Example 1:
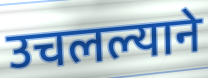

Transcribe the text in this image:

उचलल्याने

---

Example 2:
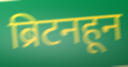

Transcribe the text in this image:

ब्रिटनहून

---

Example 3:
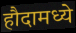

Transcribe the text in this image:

हौदामध्ये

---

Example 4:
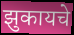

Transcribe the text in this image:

झुकायचे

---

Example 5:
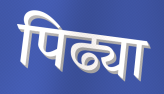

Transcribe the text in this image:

पिढ्या